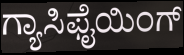
ಗ್ಯಾಸಿಫೈಯಿಂಗ್